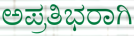
ಅಪ್ರತಿಭರಾಗಿ